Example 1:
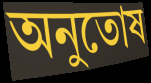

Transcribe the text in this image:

অনুতোষ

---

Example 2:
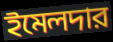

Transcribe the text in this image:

ইমেলদার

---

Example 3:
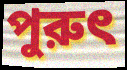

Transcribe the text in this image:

পুরুৎ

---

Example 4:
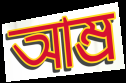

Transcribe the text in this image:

আম্র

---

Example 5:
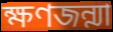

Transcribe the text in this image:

ক্ষণজন্মা